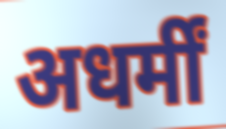
अधर्मीं